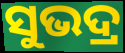
ସୁଭଦ୍ର